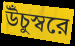
উঁচুস্বরে